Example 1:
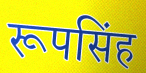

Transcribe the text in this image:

रूपसिंह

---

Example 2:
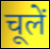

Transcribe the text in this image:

चूलें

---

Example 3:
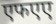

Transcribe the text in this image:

एफएए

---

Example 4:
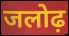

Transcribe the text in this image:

जलोढ़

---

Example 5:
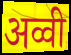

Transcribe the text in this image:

अव्वी